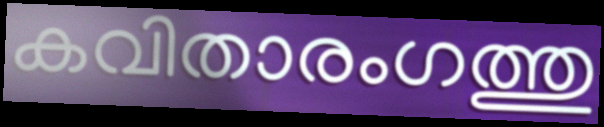
കവിതാരംഗത്തു